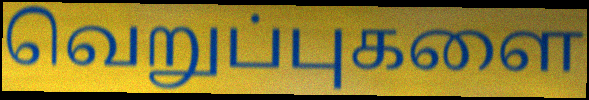
வெறுப்புகளை